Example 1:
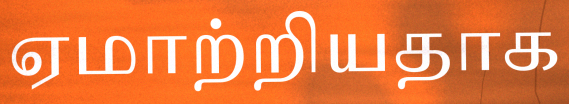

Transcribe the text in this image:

ஏமாற்றியதாக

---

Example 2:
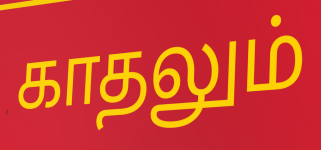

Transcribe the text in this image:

காதலும்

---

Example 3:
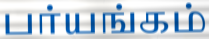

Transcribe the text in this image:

பர்யங்கம்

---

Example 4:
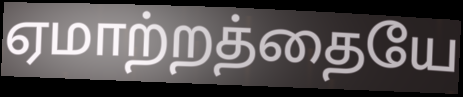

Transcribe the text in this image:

ஏமாற்றத்தையே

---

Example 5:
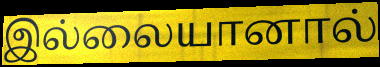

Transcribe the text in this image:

இல்லையானால்